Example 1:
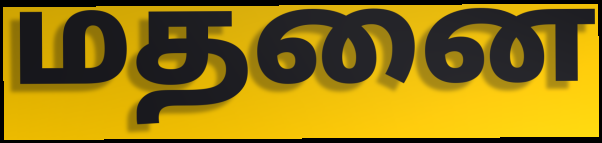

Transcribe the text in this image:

மதனை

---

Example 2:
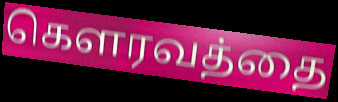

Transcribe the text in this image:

கௌரவத்தை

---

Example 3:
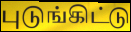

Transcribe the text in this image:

புடுங்கிட்டு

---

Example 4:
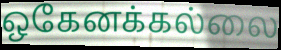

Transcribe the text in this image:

ஒகேனக்கல்லை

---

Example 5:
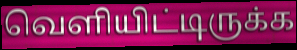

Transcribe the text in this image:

வெளியிட்டிருக்க